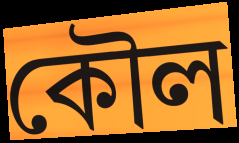
কৌল